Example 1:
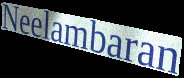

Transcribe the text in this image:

Neelambaran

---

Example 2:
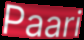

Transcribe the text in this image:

Paari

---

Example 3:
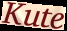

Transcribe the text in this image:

Kute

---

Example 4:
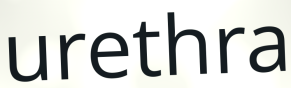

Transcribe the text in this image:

urethra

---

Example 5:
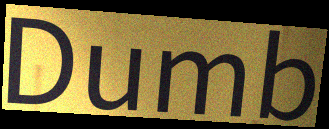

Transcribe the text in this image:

Dumb